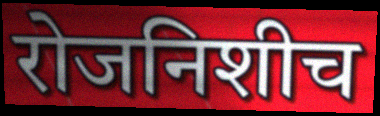
रोजनिशीच